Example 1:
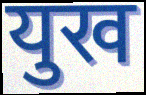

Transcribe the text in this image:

युख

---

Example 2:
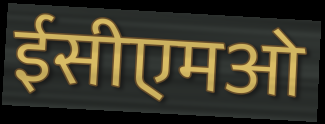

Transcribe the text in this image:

ईसीएमओ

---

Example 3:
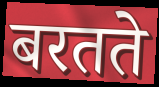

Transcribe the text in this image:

बरतते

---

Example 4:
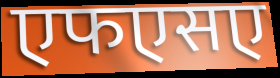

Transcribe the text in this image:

एफएसए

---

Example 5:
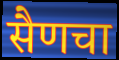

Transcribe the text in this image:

सैणचा